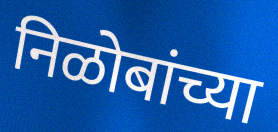
निळोबांच्या